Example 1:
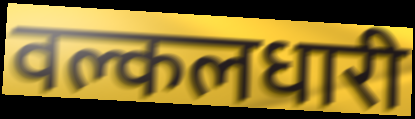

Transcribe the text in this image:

वल्कलधारी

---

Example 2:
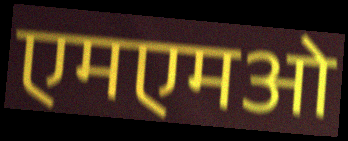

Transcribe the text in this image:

एमएमओ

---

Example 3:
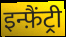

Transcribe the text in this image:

इन्फ़ैंट्री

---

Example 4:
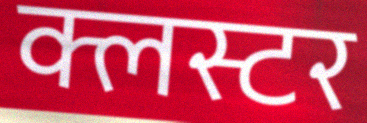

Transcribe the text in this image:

क्लस्टर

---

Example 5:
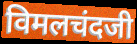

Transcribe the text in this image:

विमलचंदजी